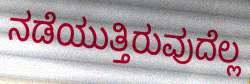
ನಡೆಯುತ್ತಿರುವುದೆಲ್ಲ